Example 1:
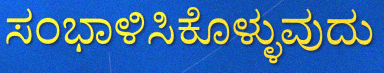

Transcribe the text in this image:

ಸಂಭಾಳಿಸಿಕೊಳ್ಳುವುದು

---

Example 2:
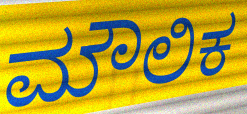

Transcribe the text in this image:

ಮೌಲಿಕ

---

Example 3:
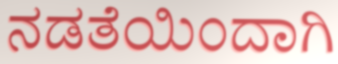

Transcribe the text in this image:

ನಡತೆಯಿಂದಾಗಿ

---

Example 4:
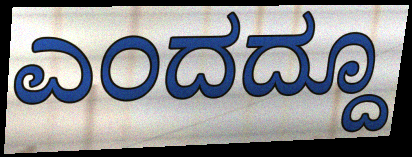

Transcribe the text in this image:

ಎಂದದ್ದೂ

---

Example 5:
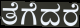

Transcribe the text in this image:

ತೆಗೆದರೆ